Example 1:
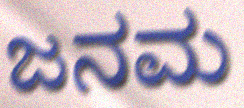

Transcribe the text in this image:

ಜನಮ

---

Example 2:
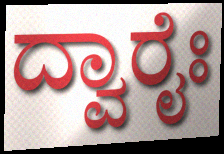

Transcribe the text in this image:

ದ್ವಾರೈಃ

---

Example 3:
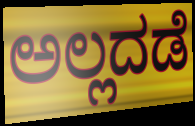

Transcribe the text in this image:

ಅಲ್ಲದಡೆ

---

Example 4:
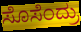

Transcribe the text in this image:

ಸೊಸೆಂದ್ರು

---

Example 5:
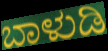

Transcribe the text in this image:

ಬಾಳುಡಿ